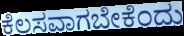
ಕೆಲಸವಾಗಬೇಕೆಂದು